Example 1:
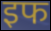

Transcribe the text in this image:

इफ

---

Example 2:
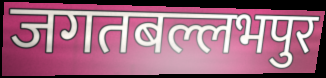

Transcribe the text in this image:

जगतबल्लभपुर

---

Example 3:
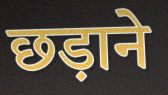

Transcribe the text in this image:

छड़ाने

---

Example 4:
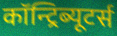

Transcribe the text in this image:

कॉन्ट्रिब्यूटर्स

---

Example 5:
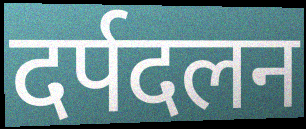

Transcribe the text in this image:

दर्पदलन